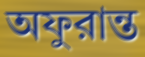
অফুরান্ত